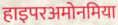
हाइपरअमोनमिया